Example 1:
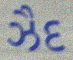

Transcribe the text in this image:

ઝૈદ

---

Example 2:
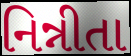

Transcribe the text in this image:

નિન્નીતા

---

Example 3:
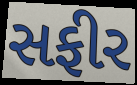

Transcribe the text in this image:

સફીર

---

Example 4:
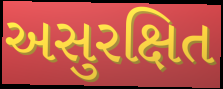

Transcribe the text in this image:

અસુરક્ષિત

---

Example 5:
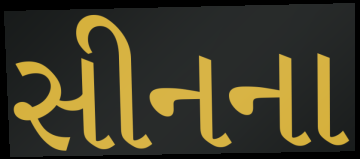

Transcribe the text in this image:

સીનના